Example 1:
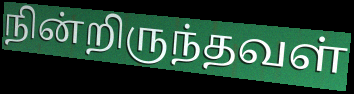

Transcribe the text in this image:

நின்றிருந்தவள்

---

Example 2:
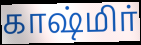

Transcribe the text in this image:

காஷ்மிர்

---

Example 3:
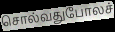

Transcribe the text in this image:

சொல்வதுபோலச்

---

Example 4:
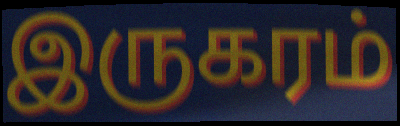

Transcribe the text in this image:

இருகரம்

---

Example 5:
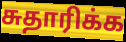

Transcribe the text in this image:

சுதாரிக்க